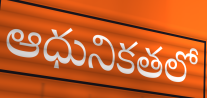
ఆధునికతలో